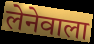
लेनेवाला